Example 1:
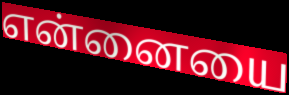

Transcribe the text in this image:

என்னையை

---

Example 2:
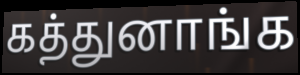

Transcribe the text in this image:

கத்துனாங்க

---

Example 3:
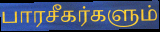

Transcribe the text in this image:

பாரசீகர்களும்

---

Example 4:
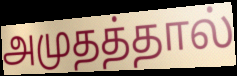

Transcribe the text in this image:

அமுதத்தால்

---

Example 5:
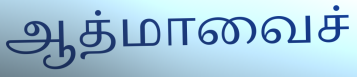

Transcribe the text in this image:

ஆத்மாவைச்